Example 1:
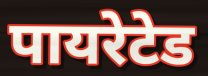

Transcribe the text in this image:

पायरेटेड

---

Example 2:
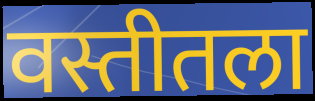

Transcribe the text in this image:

वस्तीतला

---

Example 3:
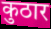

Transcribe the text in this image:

कुठार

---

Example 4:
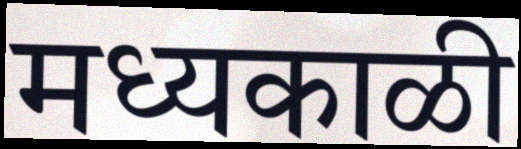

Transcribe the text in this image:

मध्यकाळी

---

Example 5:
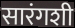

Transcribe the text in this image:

सारंगशी